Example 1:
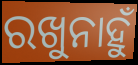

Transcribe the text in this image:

ରଖୁନାହୁଁ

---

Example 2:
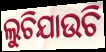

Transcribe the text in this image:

ଲୁଚିଯାଉଚି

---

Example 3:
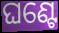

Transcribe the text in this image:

ଘଣ୍ଟେ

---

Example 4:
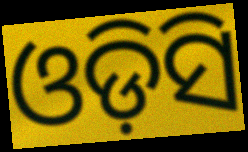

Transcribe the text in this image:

ଓଡ଼ିସି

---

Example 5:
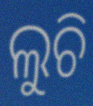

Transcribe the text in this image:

ଲୁଚି